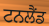
ਟਨਲੈਂਡ